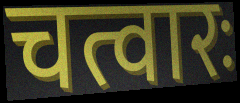
चत्वारः